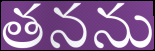
తనను